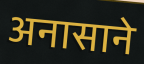
अनासाने